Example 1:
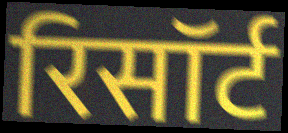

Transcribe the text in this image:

रिसॉर्ट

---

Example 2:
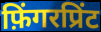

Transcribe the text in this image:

फ़िंगरप्रिंट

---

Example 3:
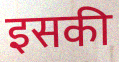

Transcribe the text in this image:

इसकी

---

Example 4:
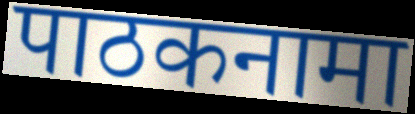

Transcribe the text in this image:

पाठकनामा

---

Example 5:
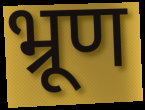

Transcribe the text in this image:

भ्रूण